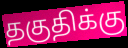
தகுதிக்கு